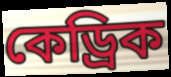
কেড্রিক